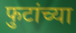
फुटांच्‍या